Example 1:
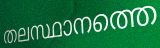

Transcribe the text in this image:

തലസ്ഥാനത്തെ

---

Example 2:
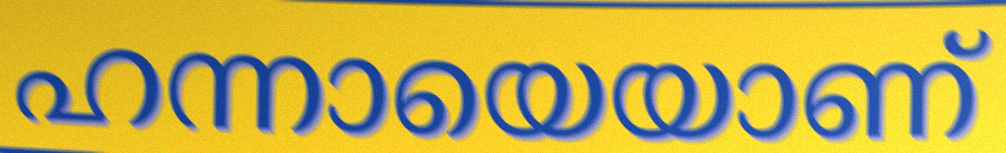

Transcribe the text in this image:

ഹന്നായെയാണ്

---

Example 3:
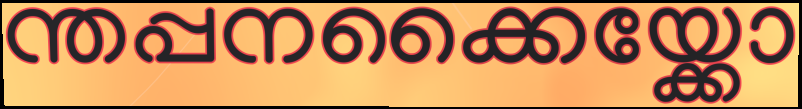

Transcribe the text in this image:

ന്തപ്പനക്കൈയ്ക്കോ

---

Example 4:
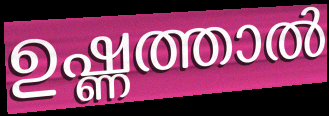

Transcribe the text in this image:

ഉഷ്ണത്താൽ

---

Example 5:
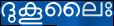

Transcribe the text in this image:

ദുകൂലൈഃ